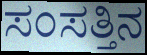
ಸಂಸತ್ತಿನ